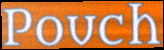
Pouch